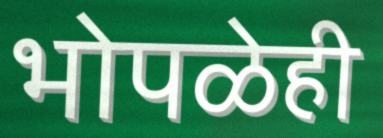
भोपळेही